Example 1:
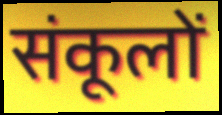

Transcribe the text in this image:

संकूलों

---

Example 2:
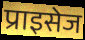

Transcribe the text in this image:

प्राइसेज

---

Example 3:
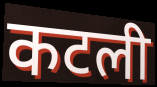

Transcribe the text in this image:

कटली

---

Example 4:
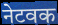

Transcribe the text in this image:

नेटवक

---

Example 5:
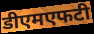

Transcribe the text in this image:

डीएमएफटी